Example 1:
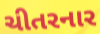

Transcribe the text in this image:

ચીતરનાર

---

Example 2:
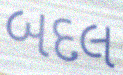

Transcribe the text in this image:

બદલ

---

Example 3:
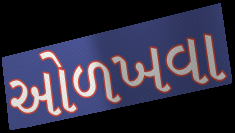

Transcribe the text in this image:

ઓળખવા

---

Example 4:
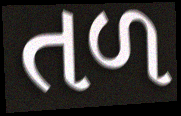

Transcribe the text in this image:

તળ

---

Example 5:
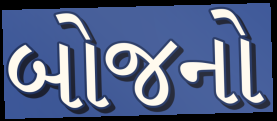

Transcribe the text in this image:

બોજનો